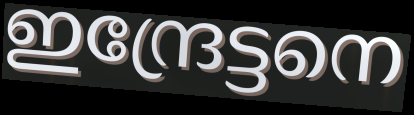
ഇന്ദ്രേട്ടനെ